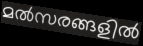
മൽസരങ്ങളിൽ